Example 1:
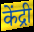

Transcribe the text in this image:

केंद्री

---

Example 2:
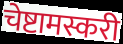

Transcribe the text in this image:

चेष्टामस्करी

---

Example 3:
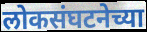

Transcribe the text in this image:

लोकसंघटनेच्या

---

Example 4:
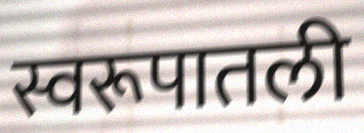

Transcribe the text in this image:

स्वरूपातली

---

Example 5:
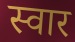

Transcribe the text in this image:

स्वार